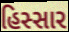
હિસ્સાર